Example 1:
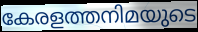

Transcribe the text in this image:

കേരളത്തനിമയുടെ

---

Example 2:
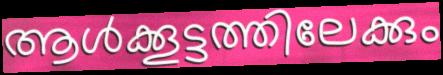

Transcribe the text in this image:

ആൾക്കൂട്ടത്തിലേക്കും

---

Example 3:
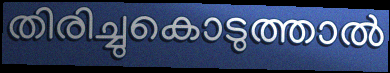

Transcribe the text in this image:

തിരിച്ചുകൊടുത്താൽ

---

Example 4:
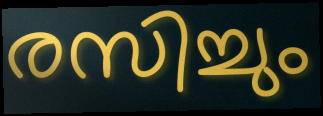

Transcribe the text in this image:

രസിച്ചും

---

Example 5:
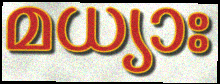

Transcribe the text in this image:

മധ്യാഃ